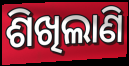
ଶିଖିଲାଣି